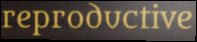
reproductive